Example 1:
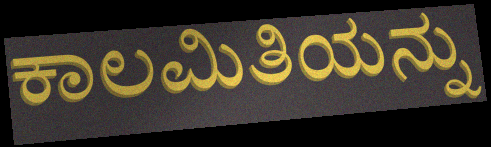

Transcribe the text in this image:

ಕಾಲಮಿತಿಯನ್ನು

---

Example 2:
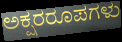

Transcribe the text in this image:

ಅಕ್ಷರರೂಪಗಳು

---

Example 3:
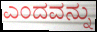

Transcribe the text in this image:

ಎಂದವನ್ನು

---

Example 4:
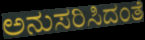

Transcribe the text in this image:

ಅನುಸರಿಸಿದಂತೆ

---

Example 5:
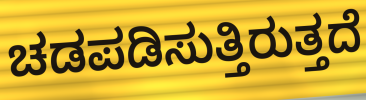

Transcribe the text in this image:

ಚಡಪಡಿಸುತ್ತಿರುತ್ತದೆ